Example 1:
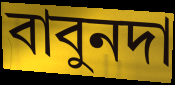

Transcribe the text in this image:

বাবুনদা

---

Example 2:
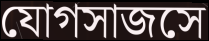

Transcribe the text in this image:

যোগসাজসে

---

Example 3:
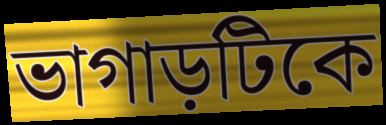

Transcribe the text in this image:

ভাগাড়টিকে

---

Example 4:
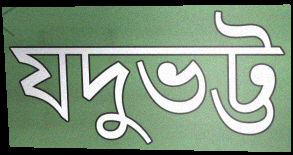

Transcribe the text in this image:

যদুভট্ট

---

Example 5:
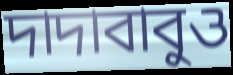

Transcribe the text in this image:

দাদাবাবুও